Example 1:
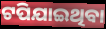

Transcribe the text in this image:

ଟପିଯାଇଥିବା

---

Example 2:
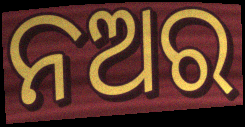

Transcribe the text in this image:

ନଅର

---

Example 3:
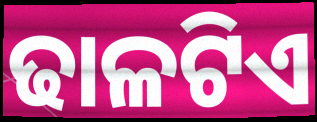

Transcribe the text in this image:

ଢାଳଟିଏ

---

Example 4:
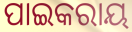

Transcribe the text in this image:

ପାଇକରାୟ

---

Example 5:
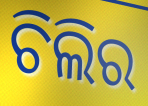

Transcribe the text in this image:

ଚିଲିର